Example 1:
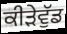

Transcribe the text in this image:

ਕੀੜੇਵੁੱਡ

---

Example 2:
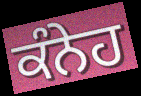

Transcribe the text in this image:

ਕੰਨੇਹ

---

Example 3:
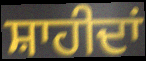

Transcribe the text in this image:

ਸ਼ਾਹੀਦਾਂ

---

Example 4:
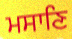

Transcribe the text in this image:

ਮਸਾਣਿ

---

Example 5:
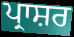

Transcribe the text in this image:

ਪ੍ਰਾਸ਼ਰ